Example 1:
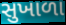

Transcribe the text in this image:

સુખાળા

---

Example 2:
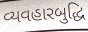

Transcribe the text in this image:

વ્યવહારબુદ્ધિ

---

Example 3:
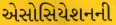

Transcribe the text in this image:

એસોસિયેશનની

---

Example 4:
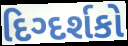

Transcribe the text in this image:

દિગ્દર્શકો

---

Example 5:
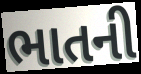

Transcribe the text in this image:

ભાતની